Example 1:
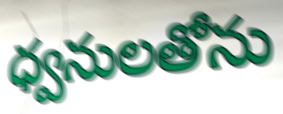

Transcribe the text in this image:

ధ్వనులతోను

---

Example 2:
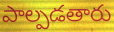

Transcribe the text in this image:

పాల్పడతారు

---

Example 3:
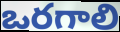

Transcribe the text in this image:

ఒరగాలి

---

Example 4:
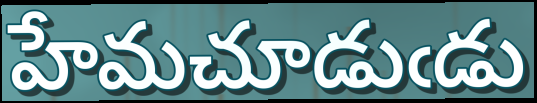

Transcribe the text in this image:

హేమచూడుఁడు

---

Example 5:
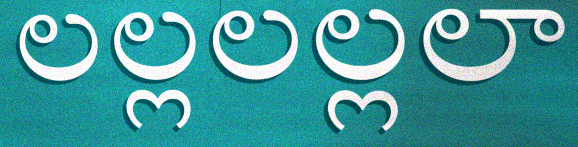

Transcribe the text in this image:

లల్లలల్లలా